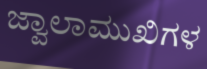
ಜ್ವಾಲಾಮುಖಿಗಳ